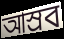
আস্রব